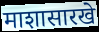
माशासारखे